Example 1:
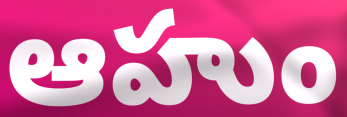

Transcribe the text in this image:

ఆహుం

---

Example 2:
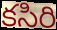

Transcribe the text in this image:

కసిరి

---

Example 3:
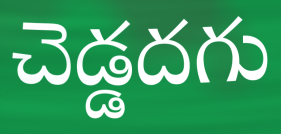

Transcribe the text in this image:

చెడ్డదగు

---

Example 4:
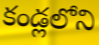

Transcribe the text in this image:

కండ్లలోని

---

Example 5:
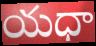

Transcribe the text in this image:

యధా